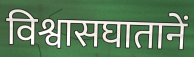
विश्वासघातानें